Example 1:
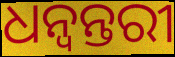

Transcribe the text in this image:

ଧନ୍ବନ୍ତରୀ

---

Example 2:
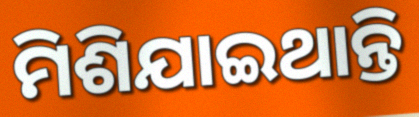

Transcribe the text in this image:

ମିଶିଯାଇଥାନ୍ତି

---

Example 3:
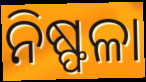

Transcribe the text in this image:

ନିଷ୍ଫଳା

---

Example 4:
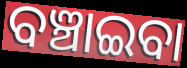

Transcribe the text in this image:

ବଞ୍ଚାଇବା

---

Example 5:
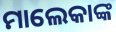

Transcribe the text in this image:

ମାଲେକାଙ୍କ